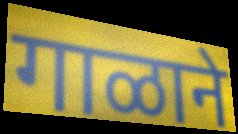
गाळाने